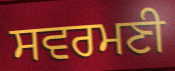
ਸਵਰਮਣੀ